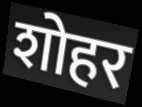
शोहर